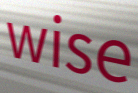
wise